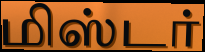
மிஸ்டர்